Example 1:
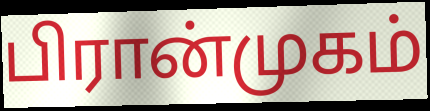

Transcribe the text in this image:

பிரான்முகம்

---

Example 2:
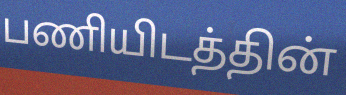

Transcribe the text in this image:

பணியிடத்தின்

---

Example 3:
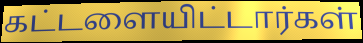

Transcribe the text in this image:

கட்டளையிட்டார்கள்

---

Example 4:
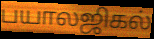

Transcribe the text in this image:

பயாலஜிகல்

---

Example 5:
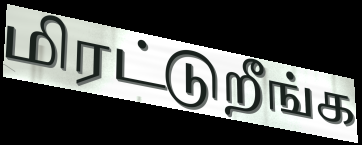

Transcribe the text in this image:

மிரட்டுறீங்க